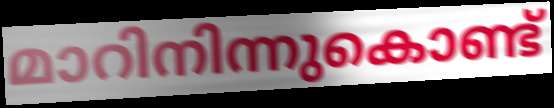
മാറിനിന്നുകൊണ്ട്